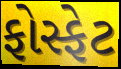
ફોસ્ફેટ